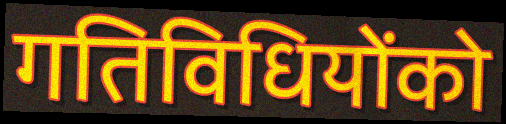
गतिविधियोंको